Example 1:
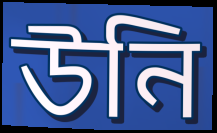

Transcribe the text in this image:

উনি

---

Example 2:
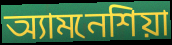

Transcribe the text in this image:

অ্যামনেশিয়া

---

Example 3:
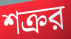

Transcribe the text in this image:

শক্রর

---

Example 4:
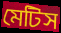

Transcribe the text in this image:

মেটিস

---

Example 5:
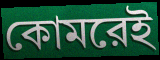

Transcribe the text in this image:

কোমরেই